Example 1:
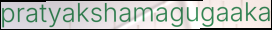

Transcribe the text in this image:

pratyakshamagugaaka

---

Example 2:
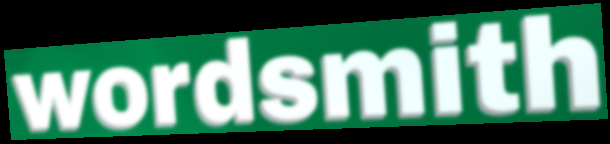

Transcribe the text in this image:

wordsmith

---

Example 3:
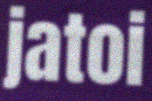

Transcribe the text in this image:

jatoi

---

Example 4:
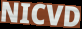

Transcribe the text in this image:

NICVD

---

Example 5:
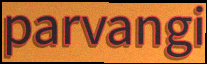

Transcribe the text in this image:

parvangi